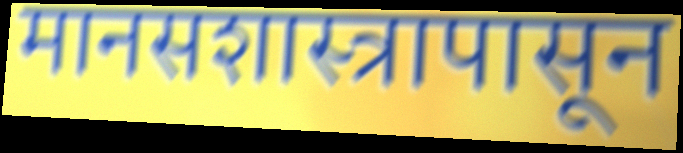
मानसशास्त्रापासून